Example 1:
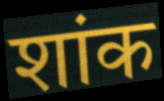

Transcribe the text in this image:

शांक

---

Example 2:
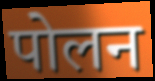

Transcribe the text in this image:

पोलन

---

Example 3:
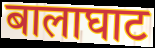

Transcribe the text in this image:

बालाघाट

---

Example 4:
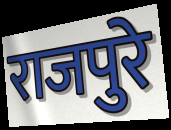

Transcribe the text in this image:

राजपुरे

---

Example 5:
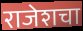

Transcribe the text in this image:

राजेशचा